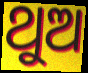
ଥୁଅ